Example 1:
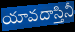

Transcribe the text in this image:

యావదాస్తినీ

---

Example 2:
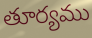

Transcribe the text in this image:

తూర్యము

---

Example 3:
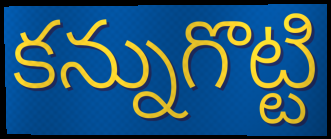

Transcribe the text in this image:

కన్నుగొట్టి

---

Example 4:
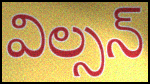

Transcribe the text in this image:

విల్సన్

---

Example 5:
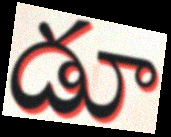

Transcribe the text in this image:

డూ